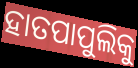
ହାତପାପୁଲିକୁ